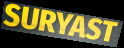
SURYAST